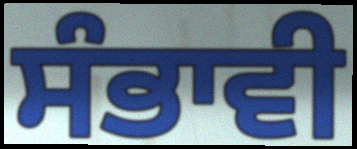
ਸੰਭਾਵੀ